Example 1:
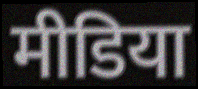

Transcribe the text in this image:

मीडिया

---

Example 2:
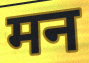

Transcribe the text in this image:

मन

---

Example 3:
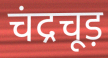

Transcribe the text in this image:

चंद्रचूड़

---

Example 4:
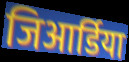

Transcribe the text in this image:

जिआर्डिया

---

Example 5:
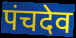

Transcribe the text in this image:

पंचदेव